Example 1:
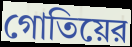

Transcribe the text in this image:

গোতিয়ের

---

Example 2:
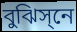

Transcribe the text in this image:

বুঝিস্‌নে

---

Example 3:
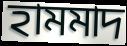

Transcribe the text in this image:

হামমাদ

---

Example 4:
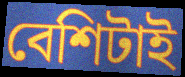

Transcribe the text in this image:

বেশিটাই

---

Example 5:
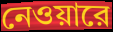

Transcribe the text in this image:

নেওয়ারে